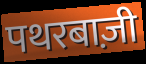
पथरबाज़ी